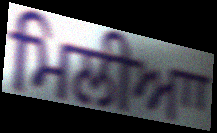
ਮਿਲੀਆਾ